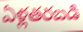
ఏళ్లతరబడి